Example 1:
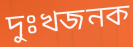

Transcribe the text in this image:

দুঃখজনক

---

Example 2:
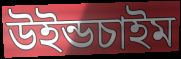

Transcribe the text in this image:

উইন্ডচাইম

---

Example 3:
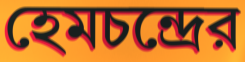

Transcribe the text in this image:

হেমচন্দ্রের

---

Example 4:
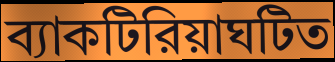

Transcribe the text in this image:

ব্যাকটিরিয়াঘটিত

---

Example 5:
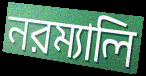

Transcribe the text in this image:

নরম্যালি